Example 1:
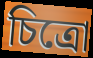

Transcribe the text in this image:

চিত্রো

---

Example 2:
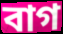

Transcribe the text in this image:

বাগ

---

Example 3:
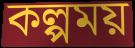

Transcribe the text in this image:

কল্পময়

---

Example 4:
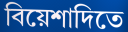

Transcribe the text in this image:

বিয়েশাদিতে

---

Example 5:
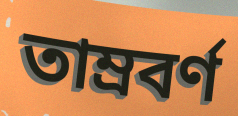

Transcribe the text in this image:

তাম্রবর্ণ